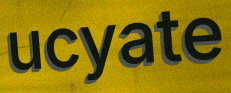
ucyate